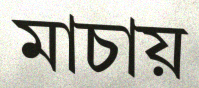
মাচায়